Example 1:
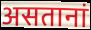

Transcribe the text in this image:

असतानां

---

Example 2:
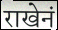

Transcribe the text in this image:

राखेनं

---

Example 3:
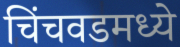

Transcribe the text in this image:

चिंचवडमध्ये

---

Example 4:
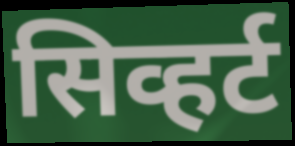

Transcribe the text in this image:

सिव्हर्ट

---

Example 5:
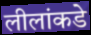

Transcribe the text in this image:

लीलांकडे